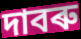
দাবৰু